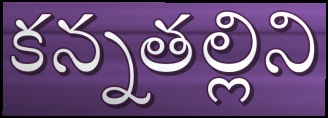
కన్నతల్లిని